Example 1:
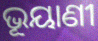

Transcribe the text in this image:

ଭୂୟାଣୀ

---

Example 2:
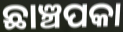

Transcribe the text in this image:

ଛାଞ୍ଚପକା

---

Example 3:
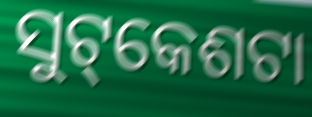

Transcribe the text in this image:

ସୁଟ୍‌କେଶଟା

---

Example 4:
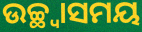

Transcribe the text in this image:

ଉଚ୍ଛ୍ୱାସମୟ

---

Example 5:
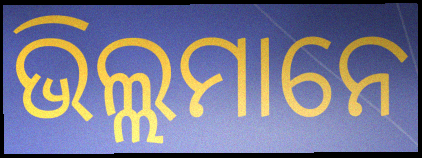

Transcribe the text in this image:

ଭିଲ୍ଲମାନେ